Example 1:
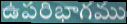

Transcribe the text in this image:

ఉపరిభాగము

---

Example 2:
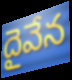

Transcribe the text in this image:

దైవేన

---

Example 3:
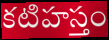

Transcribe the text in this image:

కటిహస్తం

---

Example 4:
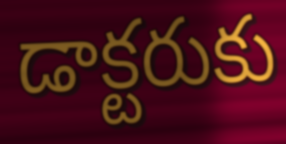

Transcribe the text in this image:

డాక్టరుకు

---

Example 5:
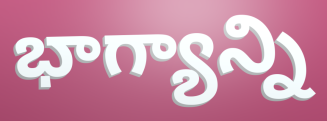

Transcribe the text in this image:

భాగ్యాన్ని